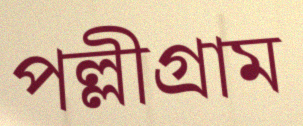
পল্লীগ্রাম